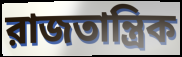
রাজতান্ত্রিক